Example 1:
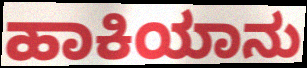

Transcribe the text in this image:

ಹಾಕಿಯಾನು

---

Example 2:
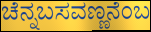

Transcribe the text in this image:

ಚೆನ್ನಬಸವಣ್ಣನೆಂಬ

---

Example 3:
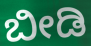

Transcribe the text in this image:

ಬೀಡಿ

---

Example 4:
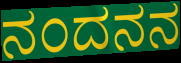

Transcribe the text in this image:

ನಂದನನ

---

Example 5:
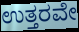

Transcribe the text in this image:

ಉತ್ತರವೇ